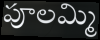
పూలమ్మి